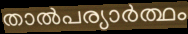
താൽപര്യാർത്ഥം